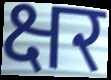
क्षर